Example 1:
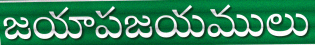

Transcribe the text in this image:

జయాపజయములు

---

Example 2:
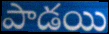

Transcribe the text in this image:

పాడయి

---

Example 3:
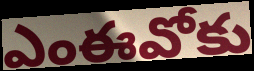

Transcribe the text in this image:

ఎంఈవోకు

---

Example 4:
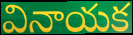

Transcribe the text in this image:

వినాయక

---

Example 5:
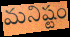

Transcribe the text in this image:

మనిష్టం